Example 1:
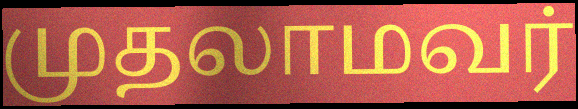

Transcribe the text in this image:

முதலாமவர்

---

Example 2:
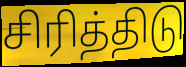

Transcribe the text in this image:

சிரித்திடு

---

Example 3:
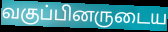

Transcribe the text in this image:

வகுப்பினருடைய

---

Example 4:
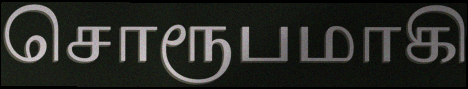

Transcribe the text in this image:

சொரூபமாகி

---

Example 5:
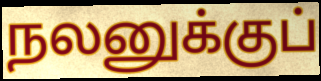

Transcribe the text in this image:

நலனுக்குப்